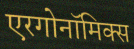
एरगोनॉमिक्स